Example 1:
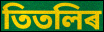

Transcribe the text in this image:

তিতলিৰ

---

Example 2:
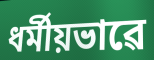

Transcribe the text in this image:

ধৰ্মীয়ভাৱে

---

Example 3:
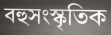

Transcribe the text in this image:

বহুসংস্কৃতিক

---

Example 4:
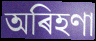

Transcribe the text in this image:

অৰিহণা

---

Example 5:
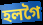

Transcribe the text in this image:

হলগৈ